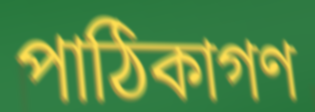
পাঠিকাগণ